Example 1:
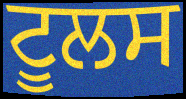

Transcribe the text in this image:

ਟੂਲਸ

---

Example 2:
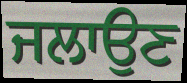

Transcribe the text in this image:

ਜਲਾਉਣ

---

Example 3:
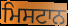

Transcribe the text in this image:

ਮਿਸਟਾਨ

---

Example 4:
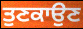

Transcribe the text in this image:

ਤੁਣਕਾਉਣ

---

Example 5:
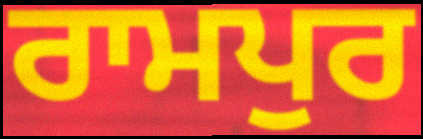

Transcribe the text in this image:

ਰਾਮਪੁਰ